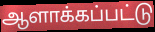
ஆளாக்கப்பட்டு